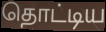
தொட்டிய